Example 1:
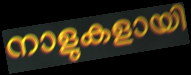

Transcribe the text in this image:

നാളുകളായി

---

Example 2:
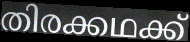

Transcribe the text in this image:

തിരക്കഥക്ക്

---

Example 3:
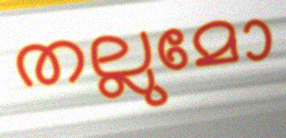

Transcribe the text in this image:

തല്ലുമോ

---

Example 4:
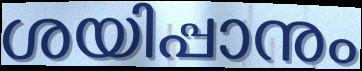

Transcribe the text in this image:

ശയിപ്പാനും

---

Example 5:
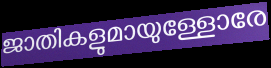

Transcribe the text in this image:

ജാതികളുമായുള്ളോരേ